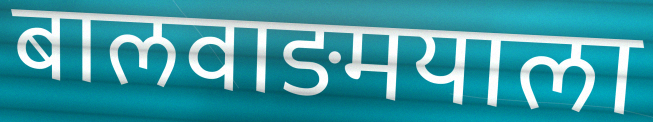
बालवाङमयाला